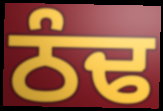
ਠੰਢ